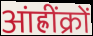
आंह्रींक्रों